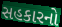
સહકારનો